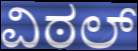
ವಿಠಲ್